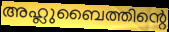
അഹ്ലുബൈത്തിന്റെ